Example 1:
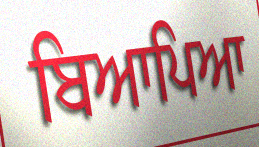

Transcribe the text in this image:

ਬਿਆਪਿਆ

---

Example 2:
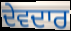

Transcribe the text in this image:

ਦੇਵਦਾਰ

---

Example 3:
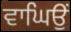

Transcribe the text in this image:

ਵਾਘਿਉਂ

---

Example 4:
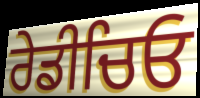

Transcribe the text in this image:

ਰੇਡੀਚਿਓ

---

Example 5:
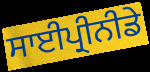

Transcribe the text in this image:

ਸਾਈਪ੍ਰੀਨੀਡੇ